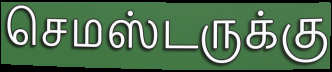
செமஸ்டருக்கு